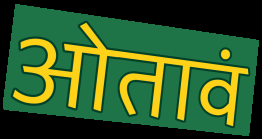
ओतावं